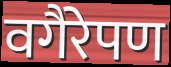
वगैरेपण